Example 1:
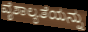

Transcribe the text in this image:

ವೈಶಾಲ್ಯತೆಯನ್ನು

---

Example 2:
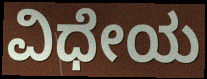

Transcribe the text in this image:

ವಿಧೇಯ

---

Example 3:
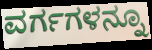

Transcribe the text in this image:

ವರ್ಗಗಳನ್ನೂ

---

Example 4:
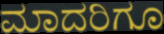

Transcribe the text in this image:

ಮಾದರಿಗೂ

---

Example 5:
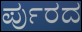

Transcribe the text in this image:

ರ್ಪುರದ